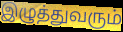
இழுத்துவரும்